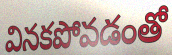
వినకపోవడంతో